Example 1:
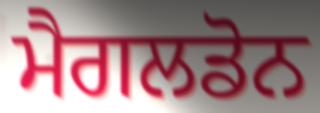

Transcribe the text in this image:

ਮੈਗਲਡੋਨ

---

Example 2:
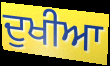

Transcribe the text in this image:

ਦੁਖੀਆ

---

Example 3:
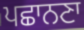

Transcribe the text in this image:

ਪਛਾਨਣਾ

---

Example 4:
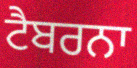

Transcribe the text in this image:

ਟੈਬਰਨਾ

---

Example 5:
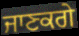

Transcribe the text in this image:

ਜਾਣਕਗੇ